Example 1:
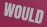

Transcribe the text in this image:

WOULD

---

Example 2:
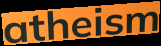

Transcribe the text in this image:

atheism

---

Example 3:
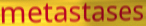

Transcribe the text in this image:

metastases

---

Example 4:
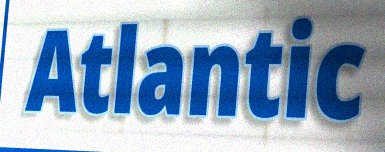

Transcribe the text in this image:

Atlantic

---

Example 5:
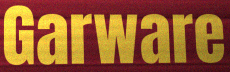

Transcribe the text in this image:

Garware